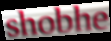
shobhe